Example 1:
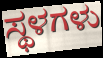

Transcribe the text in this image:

ಸ್ಥಳಗಳು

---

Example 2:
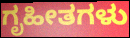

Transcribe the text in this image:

ಗೃಹೀತಗಳು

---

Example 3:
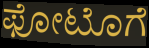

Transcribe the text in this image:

ಫೋಟೊಗೆ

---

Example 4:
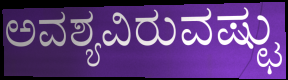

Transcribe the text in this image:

ಅವಶ್ಯವಿರುವಷ್ಟು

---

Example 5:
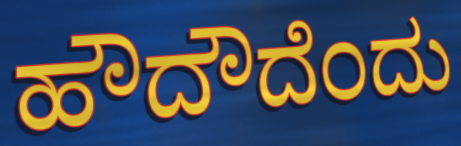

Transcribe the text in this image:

ಹೌದೌದೆಂದು